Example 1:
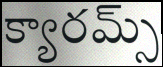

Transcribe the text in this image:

క్యారమ్స్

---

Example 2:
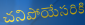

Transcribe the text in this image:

చనిపోయేసరికి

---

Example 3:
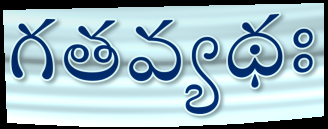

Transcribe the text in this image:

గతవ్యథః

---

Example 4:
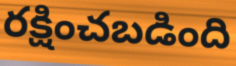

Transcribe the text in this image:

రక్షించబడింది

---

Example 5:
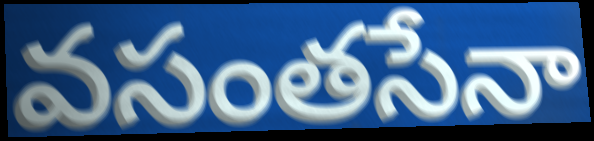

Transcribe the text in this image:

వసంతసేనా